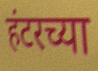
हंटरच्या